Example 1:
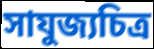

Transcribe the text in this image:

সাযুজ্যচিত্র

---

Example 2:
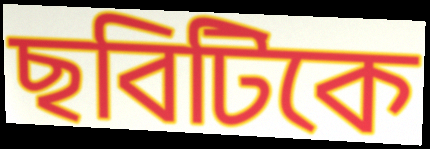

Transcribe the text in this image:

ছবিটিকে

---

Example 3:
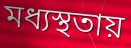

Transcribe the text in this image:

মধ্যস্থতায়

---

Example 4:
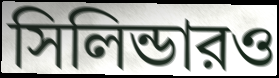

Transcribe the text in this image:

সিলিন্ডারও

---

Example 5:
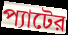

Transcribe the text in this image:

প্যাটের